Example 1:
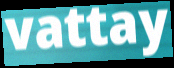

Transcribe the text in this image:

vattay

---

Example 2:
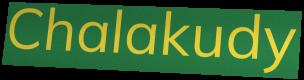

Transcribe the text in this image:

Chalakudy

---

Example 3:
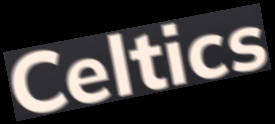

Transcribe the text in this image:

Celtics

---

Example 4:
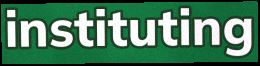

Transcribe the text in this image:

instituting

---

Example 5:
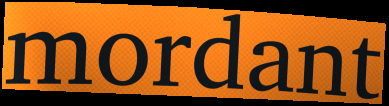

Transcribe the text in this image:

mordant